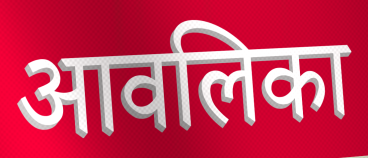
आवलिका